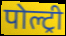
पोल्ट्री